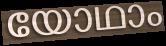
യോഥാം